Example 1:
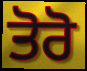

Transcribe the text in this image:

ਤੋਰੋ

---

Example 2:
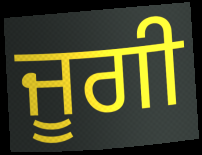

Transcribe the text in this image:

ਜੂਗੀ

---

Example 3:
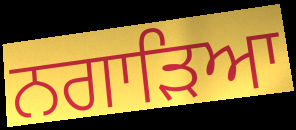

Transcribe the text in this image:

ਨਗਾੜਿਆ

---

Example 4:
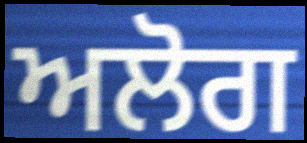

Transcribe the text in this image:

ਅਲੋਗ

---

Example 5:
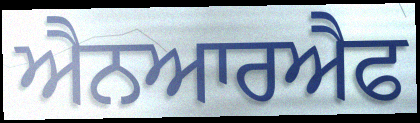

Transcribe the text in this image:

ਐਨਆਰਐਫ